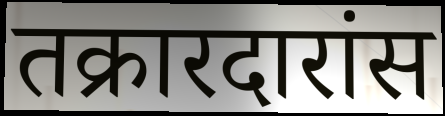
तक्रारदारांस